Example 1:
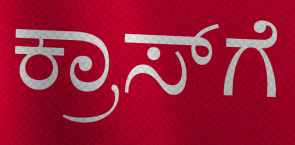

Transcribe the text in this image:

ಕ್ರಾಸ್‌ಗೆ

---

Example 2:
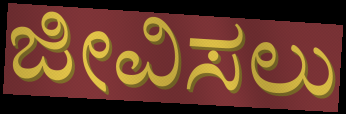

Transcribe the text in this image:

ಜೀವಿಸಲು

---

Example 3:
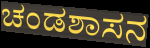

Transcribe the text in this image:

ಚಂಡಶಾಸನ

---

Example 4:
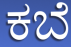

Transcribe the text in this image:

ಕಬೆ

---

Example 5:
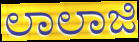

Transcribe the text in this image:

ಲಾಲಾಜಿ